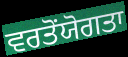
ਵਰਤੋਂਯੋਗਤਾ